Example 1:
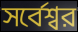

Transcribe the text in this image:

সর্বেশ্বর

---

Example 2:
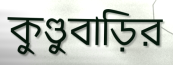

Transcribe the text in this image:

কুণ্ডুবাড়ির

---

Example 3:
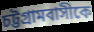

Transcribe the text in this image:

চট্টগ্রামবাসীকে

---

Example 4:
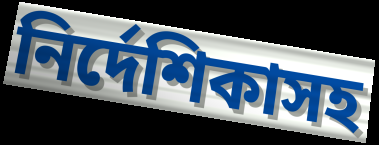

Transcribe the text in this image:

নির্দেশিকাসহ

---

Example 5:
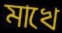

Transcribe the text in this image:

মাখে